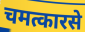
चमत्कारसे